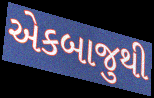
એકબાજુથી